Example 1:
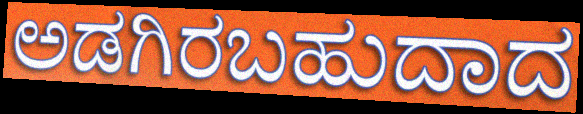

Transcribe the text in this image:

ಅಡಗಿರಬಹುದಾದ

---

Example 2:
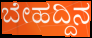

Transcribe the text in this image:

ಬೇಹದ್ದಿನ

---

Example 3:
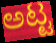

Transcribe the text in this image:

ಅಟ್ಟ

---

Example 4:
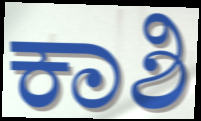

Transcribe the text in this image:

ಕಾಶಿ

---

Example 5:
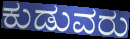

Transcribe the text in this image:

ಕುಡುವರು